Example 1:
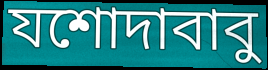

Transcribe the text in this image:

যশোদাবাবু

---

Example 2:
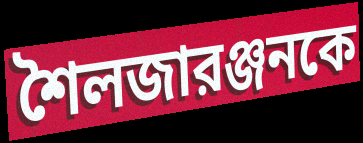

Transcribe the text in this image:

শৈলজারঞ্জনকে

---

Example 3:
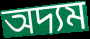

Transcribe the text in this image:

অদ্যম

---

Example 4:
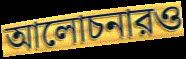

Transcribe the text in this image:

আলোচনারও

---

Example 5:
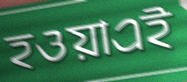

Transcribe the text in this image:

হওয়াএই